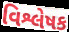
વિશ્લેષક